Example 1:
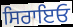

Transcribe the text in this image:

ਸਿਰਾਇਓ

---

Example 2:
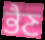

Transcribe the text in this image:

ਭੈਣ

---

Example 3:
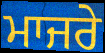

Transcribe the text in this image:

ਮਾਜਰੇ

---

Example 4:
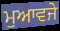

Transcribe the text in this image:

ਮੁਆਵਜੇ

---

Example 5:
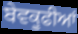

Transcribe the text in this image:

ਬੇਵਕੂਫੀਆਂ